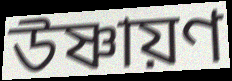
উষ্ণায়ণ